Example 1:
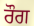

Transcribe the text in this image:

ਰੌਗ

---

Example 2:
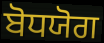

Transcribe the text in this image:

ਬੋਧਯੋਗ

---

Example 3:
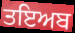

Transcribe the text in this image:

ਤਇਅਬ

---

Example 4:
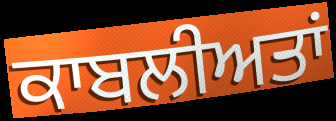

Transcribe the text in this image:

ਕਾਬਲੀਅਤਾਂ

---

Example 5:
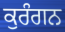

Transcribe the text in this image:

ਕੁਰੰਗਨ